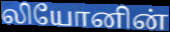
லியோனின்